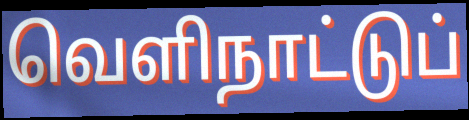
வெளிநாட்டுப்